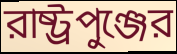
রাষ্ট্রপুঞ্জের